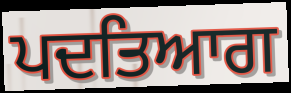
ਪਦਤਿਆਗ